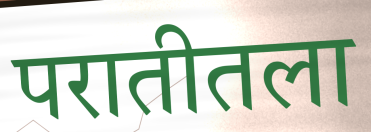
परातीतला